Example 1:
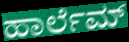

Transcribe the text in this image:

ಹಾರ್ಲೆಮ್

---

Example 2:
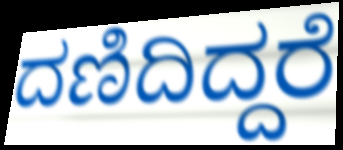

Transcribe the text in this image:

ದಣಿದಿದ್ದರೆ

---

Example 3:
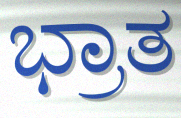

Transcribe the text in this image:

ಭ್ರಾತ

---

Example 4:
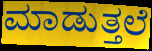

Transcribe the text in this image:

ಮಾಡುತ್ತಲೆ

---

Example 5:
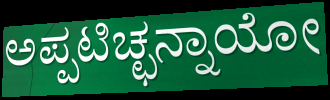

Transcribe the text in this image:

ಅಪ್ಪಟಿಚ್ಛನ್ನಾಯೋ